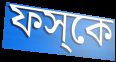
ফস্‌কে